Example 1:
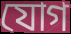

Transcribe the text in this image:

যোগ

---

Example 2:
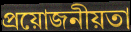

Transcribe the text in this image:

প্ৰয়োজনীয়তা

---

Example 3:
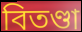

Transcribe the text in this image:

বিতণ্ডা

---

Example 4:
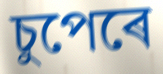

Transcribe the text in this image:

চুপেৰে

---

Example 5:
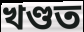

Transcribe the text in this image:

খণ্ডত